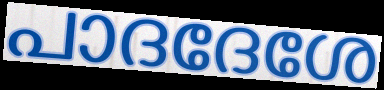
പാദദേശേ